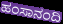
ಹಂಸಾನಂದಿ